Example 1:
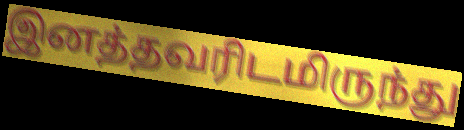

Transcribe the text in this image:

இனத்தவரிடமிருந்து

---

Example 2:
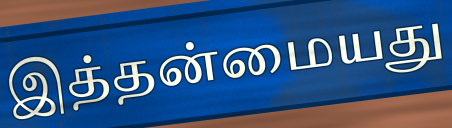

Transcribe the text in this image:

இத்தன்மையது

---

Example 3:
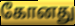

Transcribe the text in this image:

கோனது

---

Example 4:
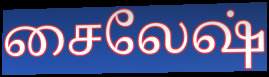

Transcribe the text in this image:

சைலேஷ்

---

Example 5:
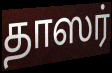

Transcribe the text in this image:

தாஸர்